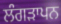
ਲੰਗੜਾਪਨ